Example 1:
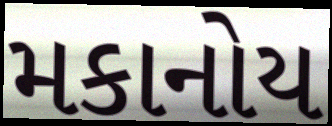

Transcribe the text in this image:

મકાનોય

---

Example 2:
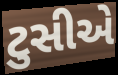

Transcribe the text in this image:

ટુસીએ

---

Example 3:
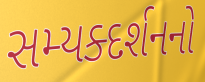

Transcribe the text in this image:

સમ્યક્દર્શનનો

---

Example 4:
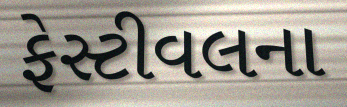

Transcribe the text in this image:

ફેસ્ટીવલના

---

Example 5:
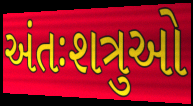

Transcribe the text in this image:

અંતઃશત્રુઓ